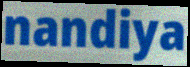
nandiya